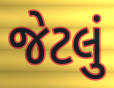
જેટલું